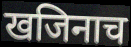
खजिनाच